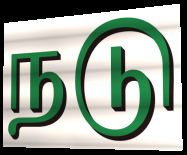
நடு